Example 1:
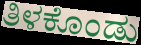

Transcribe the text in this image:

ತಿಳಕೊಂಡು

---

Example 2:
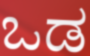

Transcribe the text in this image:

ಒಡ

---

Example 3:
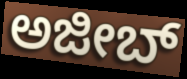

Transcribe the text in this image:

ಅಜೀಬ್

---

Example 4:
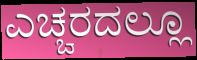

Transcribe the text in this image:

ಎಚ್ಚರದಲ್ಲೂ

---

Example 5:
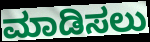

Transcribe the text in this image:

ಮಾಡಿಸಲು